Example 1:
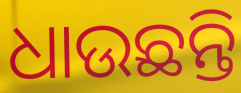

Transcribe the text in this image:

ଧାଉଛନ୍ତି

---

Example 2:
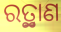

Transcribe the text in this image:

ରତ୍ର୍ଥାଣ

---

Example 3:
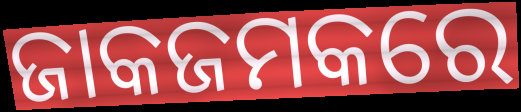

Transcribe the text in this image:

ଜାକଜମକରେ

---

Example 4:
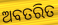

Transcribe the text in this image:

ଅବତରିତ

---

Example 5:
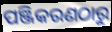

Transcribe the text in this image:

ପଞ୍ଜିକରଣଠାରୁ